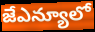
జేఎన్యూలో